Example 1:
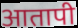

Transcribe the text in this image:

आतापी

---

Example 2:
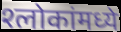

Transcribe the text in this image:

श्लोकांमध्ये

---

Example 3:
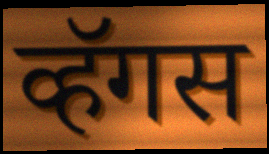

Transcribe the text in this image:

व्हॅगस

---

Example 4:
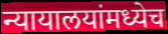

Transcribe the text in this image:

न्यायालयांमध्येच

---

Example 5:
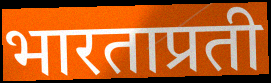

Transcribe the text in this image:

भारताप्रती